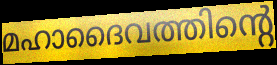
മഹാദൈവത്തിന്റെ